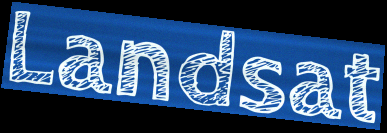
Landsat